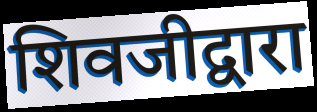
शिवजीद्वारा